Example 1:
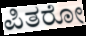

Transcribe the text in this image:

ಪಿತರೋ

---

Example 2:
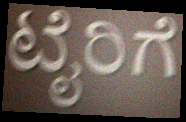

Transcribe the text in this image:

ಟೈರಿಗೆ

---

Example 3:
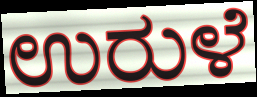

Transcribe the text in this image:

ಉರುಳೆ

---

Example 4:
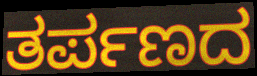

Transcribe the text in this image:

ತರ್ಪಣದ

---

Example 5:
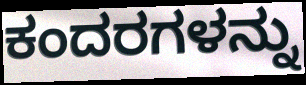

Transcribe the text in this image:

ಕಂದರಗಳನ್ನು